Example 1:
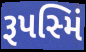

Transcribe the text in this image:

રૂપસ્મિં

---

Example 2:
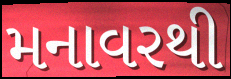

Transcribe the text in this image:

મનાવરથી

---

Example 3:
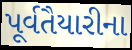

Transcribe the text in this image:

પૂર્વતૈયારીના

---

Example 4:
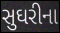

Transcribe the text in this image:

સુઘરીના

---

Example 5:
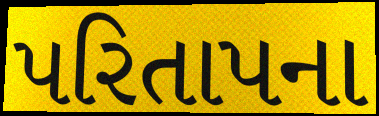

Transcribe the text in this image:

પરિતાપના